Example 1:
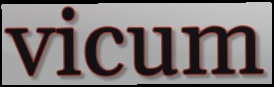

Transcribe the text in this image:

vicum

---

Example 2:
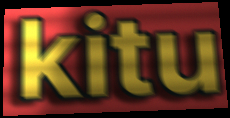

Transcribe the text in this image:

kitu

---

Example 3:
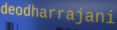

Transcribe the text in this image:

deodharrajani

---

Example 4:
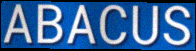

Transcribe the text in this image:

ABACUS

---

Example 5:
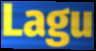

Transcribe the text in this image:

Lagu